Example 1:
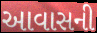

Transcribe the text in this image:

આવાસની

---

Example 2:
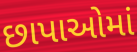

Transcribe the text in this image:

છાપાઓમાં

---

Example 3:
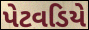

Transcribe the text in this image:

પેટવડિયે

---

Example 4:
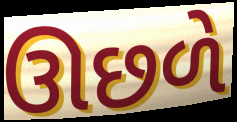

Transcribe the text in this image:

ઊછળે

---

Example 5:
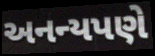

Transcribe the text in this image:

અનન્યપણે